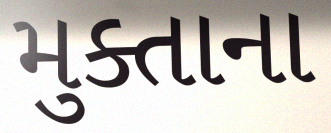
મુક્તાના